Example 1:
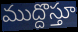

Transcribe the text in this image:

ముద్దొస్తూ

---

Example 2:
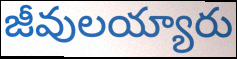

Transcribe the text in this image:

జీవులయ్యారు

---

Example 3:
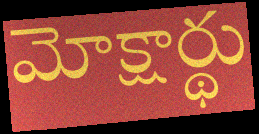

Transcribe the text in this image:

మోక్షార్థు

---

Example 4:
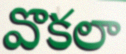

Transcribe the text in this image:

వొకలా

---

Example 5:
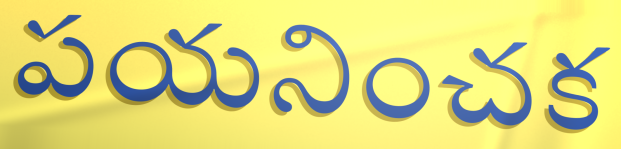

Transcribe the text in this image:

పయనించక